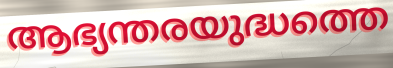
ആഭ്യന്തരയുദ്ധത്തെ